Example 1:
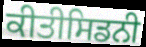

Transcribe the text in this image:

ਕੀਤੀਸਿਡਨੀ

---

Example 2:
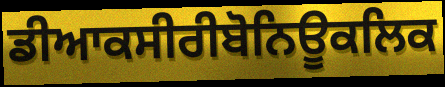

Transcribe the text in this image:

ਡੀਆਕਸੀਰੀਬੋਨਿਊਕਲਿਕ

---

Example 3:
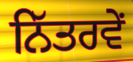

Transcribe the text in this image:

ਨਿੱਤਰਵੇਂ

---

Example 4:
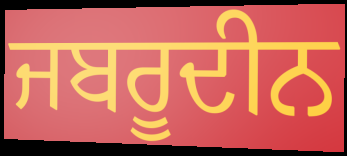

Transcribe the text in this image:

ਜਬਰੂਦੀਨ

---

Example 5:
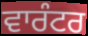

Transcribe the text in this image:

ਵਾਰੰਟਰ